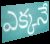
ఎక్కనే